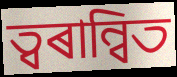
ত্বৰান্বিত